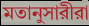
মতানুসারীরা